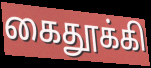
கைதூக்கி